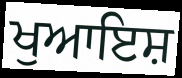
ਖੁਆਇਸ਼